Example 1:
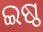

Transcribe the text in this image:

ଇଷ୍ଠ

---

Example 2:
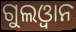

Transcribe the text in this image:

ଗୁଲଓ୍ୱାନ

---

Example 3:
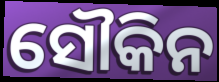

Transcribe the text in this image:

ସୌକିନ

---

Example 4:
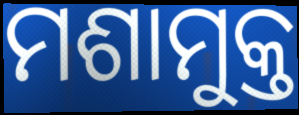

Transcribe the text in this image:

ମଶାମୁକ୍ତ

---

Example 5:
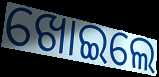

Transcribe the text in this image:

ଖୋଇଲେ